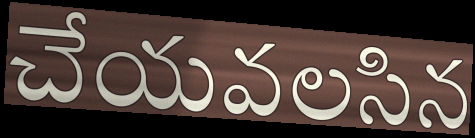
చేయవలసిన